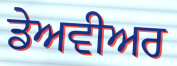
ਡੇਅਵੀਅਰ